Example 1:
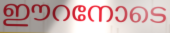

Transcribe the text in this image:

ഈറനോടെ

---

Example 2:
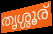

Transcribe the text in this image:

തൃശ്ശൂര്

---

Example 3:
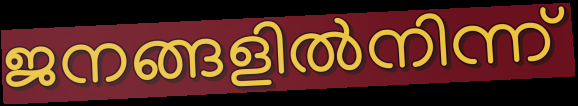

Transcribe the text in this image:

ജനങ്ങളിൽനിന്ന്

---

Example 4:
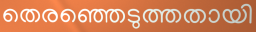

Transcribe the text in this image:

തെരഞ്ഞെടുത്തതായി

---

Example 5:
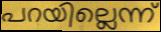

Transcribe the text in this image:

പറയില്ലെന്ന്